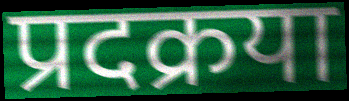
प्रदक्रया